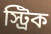
স্ট্রিক